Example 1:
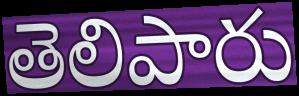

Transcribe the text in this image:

తెలిపారు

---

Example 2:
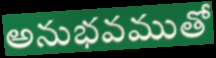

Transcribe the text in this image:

అనుభవముతో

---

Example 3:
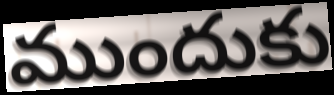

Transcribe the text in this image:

ముందుకు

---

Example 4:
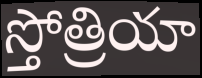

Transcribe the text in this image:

స్తోత్రియా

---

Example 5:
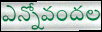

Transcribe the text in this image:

ఎన్నోవందల